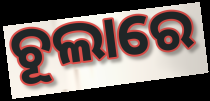
ଚୂଲାରେ